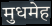
मुधमेह